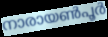
നാരായൺപൂർ